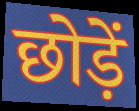
छोड़ें